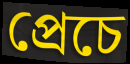
প্ৰেচে